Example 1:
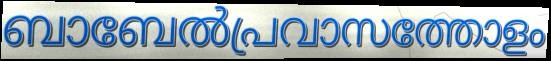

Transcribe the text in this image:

ബാബേൽപ്രവാസത്തോളം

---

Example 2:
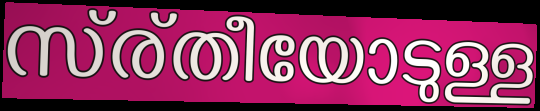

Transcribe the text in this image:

സ്ര്തീയോടുള്ള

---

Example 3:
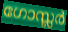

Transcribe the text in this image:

ഗോസ്ലർ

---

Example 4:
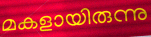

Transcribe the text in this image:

മകളായിരുന്നു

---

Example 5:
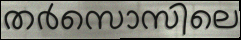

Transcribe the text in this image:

തർസൊസിലെ